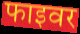
फाइवर